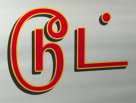
டூட்